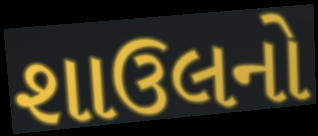
શાઉલનો